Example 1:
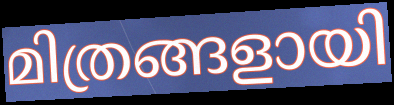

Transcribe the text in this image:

മിത്രങ്ങളായി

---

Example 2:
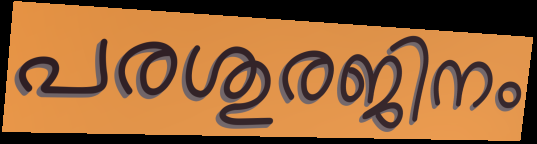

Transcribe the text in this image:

പരശുരജിനം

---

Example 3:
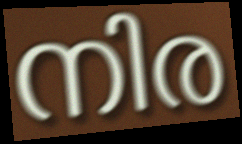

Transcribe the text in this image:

നിര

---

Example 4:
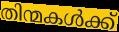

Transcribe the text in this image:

തിന്മകൾക്ക്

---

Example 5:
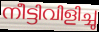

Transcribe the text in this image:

നീട്ടിവിളിച്ചു